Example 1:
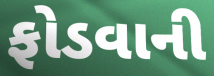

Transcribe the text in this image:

ફોડવાની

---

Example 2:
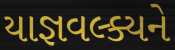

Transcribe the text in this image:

યાજ્ઞવલ્ક્યને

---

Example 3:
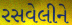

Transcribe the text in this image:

રસવેલીને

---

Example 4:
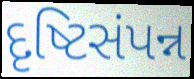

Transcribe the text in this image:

દૃષ્ટિસંપન્ન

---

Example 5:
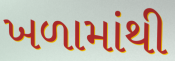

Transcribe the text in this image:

ખળામાંથી